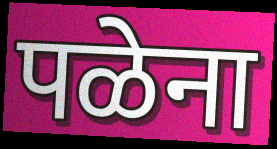
पळेना